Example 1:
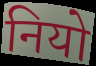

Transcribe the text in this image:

नियो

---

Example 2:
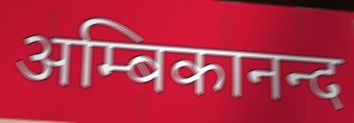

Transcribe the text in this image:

अम्बिकानन्द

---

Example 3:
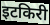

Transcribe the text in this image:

इटकिरी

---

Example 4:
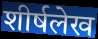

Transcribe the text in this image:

शीर्षलेख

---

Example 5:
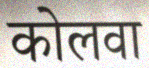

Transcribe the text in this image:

कोलवा